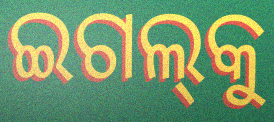
ଇଗଲ୍‌କୁ